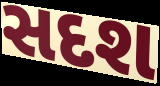
સદશ